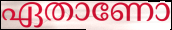
ഏതാണോ